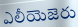
ఎలీయెజెరు